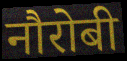
नौरोबी